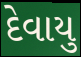
દેવાયુ